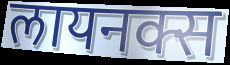
लायनक्स